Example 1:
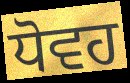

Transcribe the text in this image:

ਧੋਵਹ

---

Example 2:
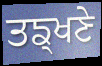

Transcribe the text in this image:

ਤਙ੍ਖਣੇ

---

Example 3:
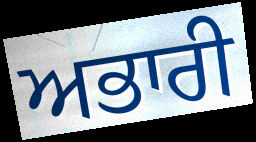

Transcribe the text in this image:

ਅਭਾਰੀ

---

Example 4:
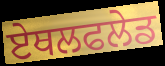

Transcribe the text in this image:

ਏਥਲਫਲੇਡ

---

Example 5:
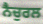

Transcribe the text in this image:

ਨੈਚੁਰਲ